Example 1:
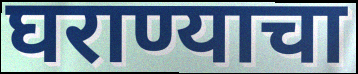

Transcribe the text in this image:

घराण्याचा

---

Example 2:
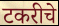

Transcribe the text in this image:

टकरीचे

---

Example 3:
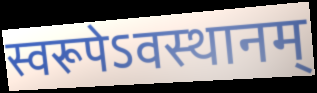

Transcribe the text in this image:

स्वरूपेऽवस्थानम्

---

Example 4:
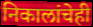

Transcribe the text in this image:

निकालांचेही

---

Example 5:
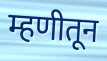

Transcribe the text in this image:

म्हणीतून